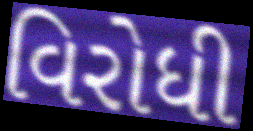
વિરોધી